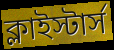
ক্লাইস্টার্স